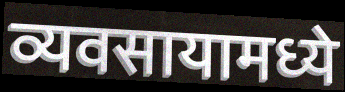
व्यवसायामध्ये